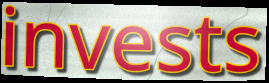
invests